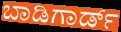
ಬಾಡಿಗಾರ್ಡ್